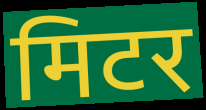
मिटर